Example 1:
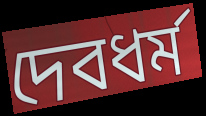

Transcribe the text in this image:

দেবধর্ম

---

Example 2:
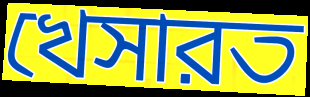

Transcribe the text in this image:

খেসারত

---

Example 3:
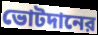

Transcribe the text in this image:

ভোটদানের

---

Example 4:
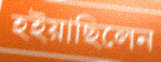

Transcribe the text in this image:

হইয়াছিলেন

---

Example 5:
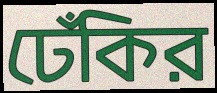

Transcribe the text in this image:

ঢেঁকির